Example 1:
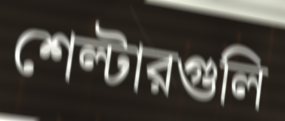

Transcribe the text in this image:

শেল্টারগুলি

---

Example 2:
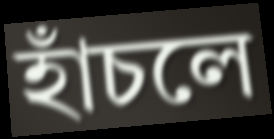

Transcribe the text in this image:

হাঁচলে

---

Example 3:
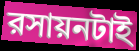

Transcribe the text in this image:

রসায়নটাই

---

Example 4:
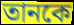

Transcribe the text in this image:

তানকে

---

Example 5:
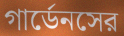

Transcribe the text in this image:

গার্ডেনসের